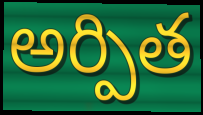
అర్పిత